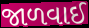
જાળવાઈ